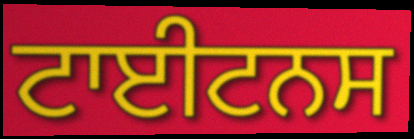
ਟਾਈਟਨਸ